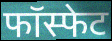
फॉस्फेट